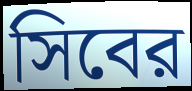
সিবের